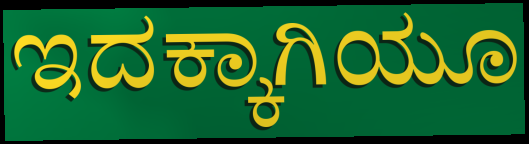
ಇದಕ್ಕಾಗಿಯೂ